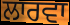
ਲਾਰਵਾ